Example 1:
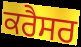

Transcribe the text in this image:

ਕਰੈਸਰ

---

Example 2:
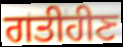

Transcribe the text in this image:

ਗਤੀਹੀਣ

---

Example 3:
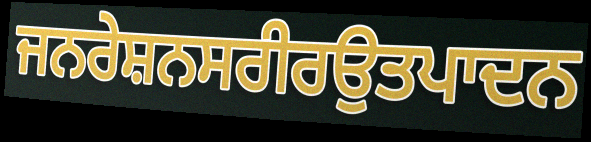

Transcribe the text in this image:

ਜਨਰੇਸ਼ਨਸਰੀਰਉਤਪਾਦਨ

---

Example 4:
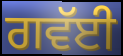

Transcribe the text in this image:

ਗਵੱਈ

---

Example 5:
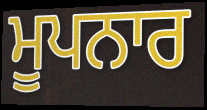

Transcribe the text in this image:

ਮੂਪਨਾਰ